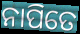
ନାପିତେ